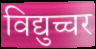
विद्युच्चर